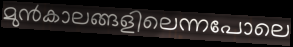
മുൻകാലങ്ങളിലെന്നപോലെ